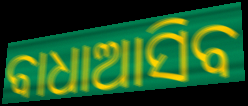
ବାଧାଆସିବ